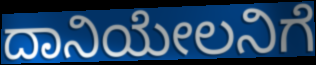
ದಾನಿಯೇಲನಿಗೆ